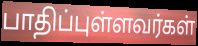
பாதிப்புள்ளவர்கள்